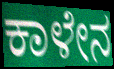
ಕಾಳೇನ